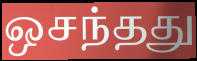
ஒசந்தது